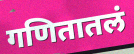
गणितातलं